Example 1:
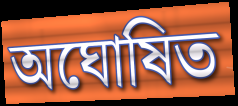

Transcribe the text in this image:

অঘোষিত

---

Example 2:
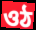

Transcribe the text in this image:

ওঠ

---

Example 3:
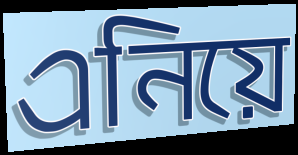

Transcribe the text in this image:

এনিয়ে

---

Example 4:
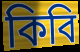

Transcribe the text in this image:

কিবি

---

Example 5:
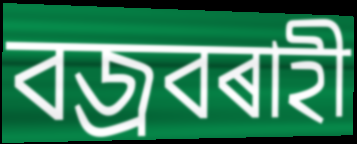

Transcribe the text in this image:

বজ্ৰবৰাহী